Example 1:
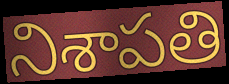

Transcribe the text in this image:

నిశాపతి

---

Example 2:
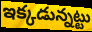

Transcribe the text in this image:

ఇక్కడున్నట్టు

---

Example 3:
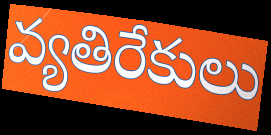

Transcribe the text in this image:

వ్యతిరేకులు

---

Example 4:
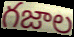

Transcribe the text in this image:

గజాల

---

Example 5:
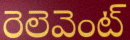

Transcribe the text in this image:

రెలెవెంట్